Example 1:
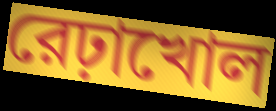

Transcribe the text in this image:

রেঢ়াখোল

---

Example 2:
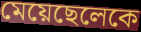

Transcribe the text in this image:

মেয়েছেলেকে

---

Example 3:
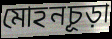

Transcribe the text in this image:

মোহনচূড়া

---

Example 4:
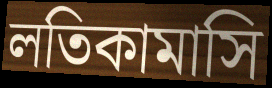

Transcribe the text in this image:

লতিকামাসি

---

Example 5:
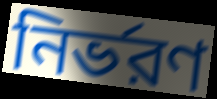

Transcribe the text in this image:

নির্ভরণ